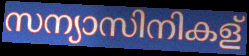
സന്യാസിനികള്